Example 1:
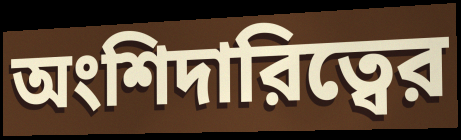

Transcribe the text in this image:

অংশিদারিত্বের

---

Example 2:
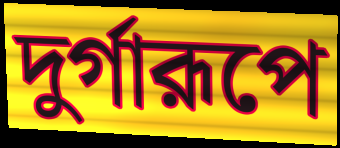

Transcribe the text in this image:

দুর্গারূপে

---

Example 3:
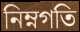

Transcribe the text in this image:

নিম্নগতি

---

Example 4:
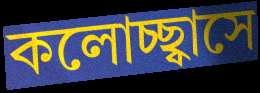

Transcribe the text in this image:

কলোচ্ছ্বাসে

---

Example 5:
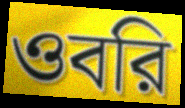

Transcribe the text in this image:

ওবরি